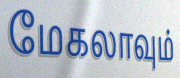
மேகலாவும்